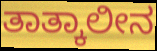
ತಾತ್ಕಾಲೀನ